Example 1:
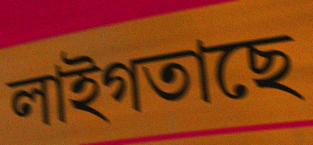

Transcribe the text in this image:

লাইগতাছে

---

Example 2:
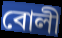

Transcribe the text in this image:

বোলী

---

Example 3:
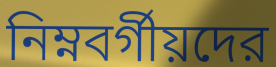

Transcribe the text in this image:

নিম্নবর্গীয়দের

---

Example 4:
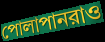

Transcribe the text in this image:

পোলাপানরাও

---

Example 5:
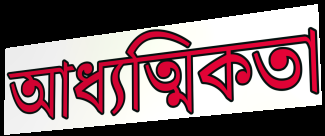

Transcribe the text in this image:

আধ্যত্মিকতা